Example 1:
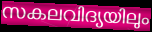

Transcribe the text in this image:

സകലവിദ്യയിലും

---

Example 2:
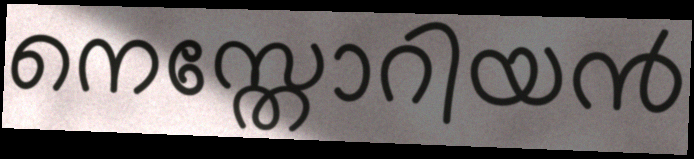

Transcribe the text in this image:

നെസ്തോറിയൻ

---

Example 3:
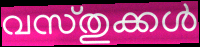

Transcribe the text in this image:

വസ്തുക്കൾ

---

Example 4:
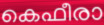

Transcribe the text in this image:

കെഫീരാ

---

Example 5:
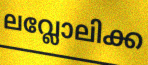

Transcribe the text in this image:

ലവ്ലോലിക്ക